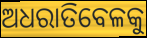
ଅଧରାତିବେଳକୁ